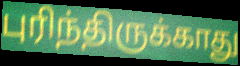
புரிந்திருக்காது